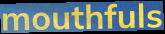
mouthfuls